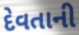
દેવતાની